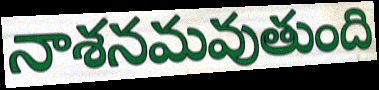
నాశనమవుతుంది